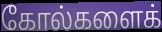
கோல்களைக்